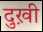
दुख़ी